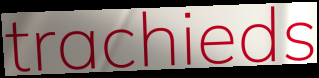
trachieds